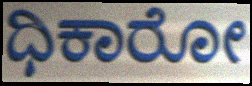
ಧಿಕಾರೋ